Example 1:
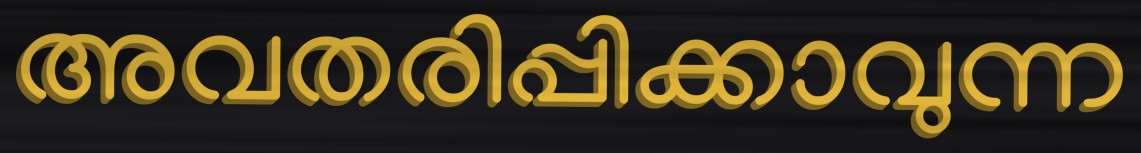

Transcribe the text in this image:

അവതരിപ്പിക്കാവുന്ന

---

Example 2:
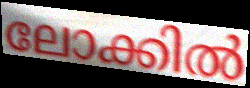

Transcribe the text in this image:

ലോക്കിൽ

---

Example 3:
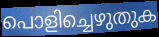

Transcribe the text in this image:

പൊളിച്ചെഴുതുക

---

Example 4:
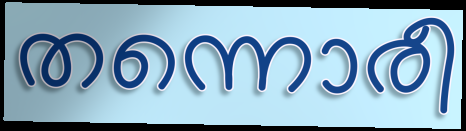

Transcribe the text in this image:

തന്നൊരീ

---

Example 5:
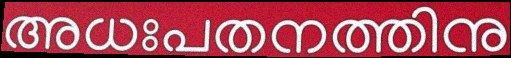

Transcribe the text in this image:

അധഃപതനത്തിനു